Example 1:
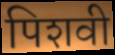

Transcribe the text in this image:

पिशवी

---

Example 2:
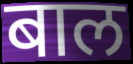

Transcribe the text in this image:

बाल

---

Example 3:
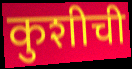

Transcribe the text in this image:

कुशीची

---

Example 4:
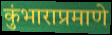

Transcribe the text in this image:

कुंभाराप्रमाणे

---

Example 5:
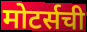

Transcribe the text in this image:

मोटर्सची